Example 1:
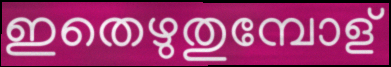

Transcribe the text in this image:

ഇതെഴുതുമ്പോള്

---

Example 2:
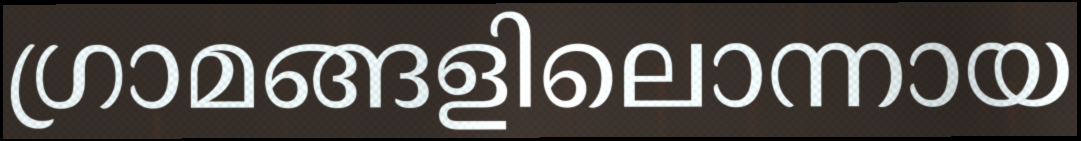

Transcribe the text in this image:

ഗ്രാമങ്ങളിലൊന്നായ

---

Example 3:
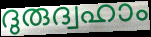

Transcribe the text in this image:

ദുരുദ്വഹാം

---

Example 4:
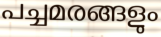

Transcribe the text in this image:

പച്ചമരങ്ങളും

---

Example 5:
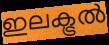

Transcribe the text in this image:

ഇലക്ട്രൽ